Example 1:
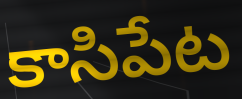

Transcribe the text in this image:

కాసిపేట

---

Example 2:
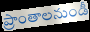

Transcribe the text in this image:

ప్రాంతాలనుండీ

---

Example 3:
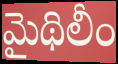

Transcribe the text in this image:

మైథిలీం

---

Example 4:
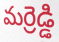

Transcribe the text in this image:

మర్రెడ్డి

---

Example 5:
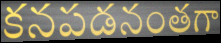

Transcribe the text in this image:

కనపడనంతగా